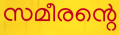
സമീരന്റെ